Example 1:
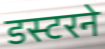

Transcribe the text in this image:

डस्टरने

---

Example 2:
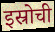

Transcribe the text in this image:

इस्रोची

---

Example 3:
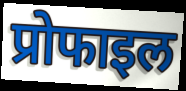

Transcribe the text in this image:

प्रोफाइल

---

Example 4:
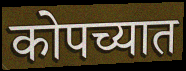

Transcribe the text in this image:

कोपच्यात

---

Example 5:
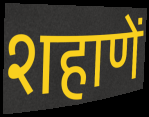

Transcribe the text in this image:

शहाणें